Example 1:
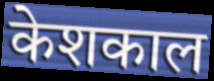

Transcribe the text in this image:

केशकाल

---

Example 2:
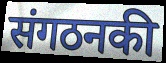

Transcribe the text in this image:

संगठनकी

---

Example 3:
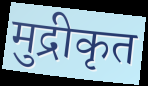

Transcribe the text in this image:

मुद्रीकृत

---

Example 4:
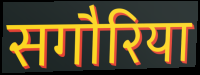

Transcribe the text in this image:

सगौरिया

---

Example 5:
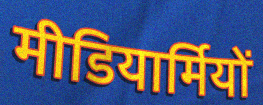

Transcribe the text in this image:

मीडियार्मियों